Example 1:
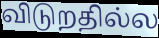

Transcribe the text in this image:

விடுறதில்ல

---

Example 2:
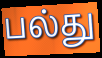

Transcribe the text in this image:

பல்து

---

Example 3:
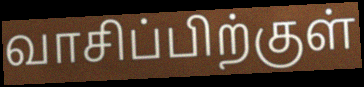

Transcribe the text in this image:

வாசிப்பிற்குள்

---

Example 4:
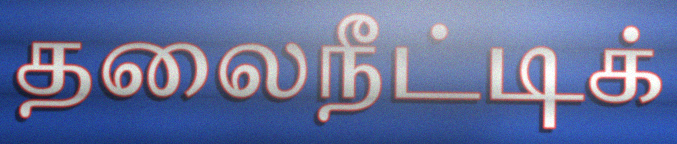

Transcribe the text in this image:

தலைநீட்டிக்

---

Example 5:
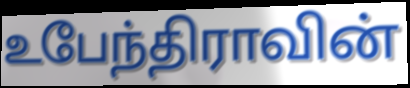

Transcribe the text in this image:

உபேந்திராவின்